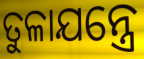
ତୁଳାଯନ୍ତ୍ରେ